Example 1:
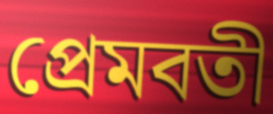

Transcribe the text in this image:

প্রেমবতী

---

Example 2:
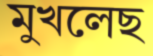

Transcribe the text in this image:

মুখলেছ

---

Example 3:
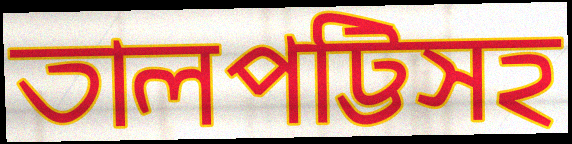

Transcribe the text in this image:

তালপট্টিসহ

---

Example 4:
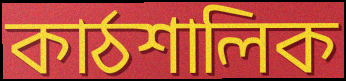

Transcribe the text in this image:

কাঠশালিক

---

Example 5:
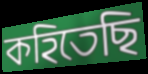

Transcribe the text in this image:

কহিতেছি